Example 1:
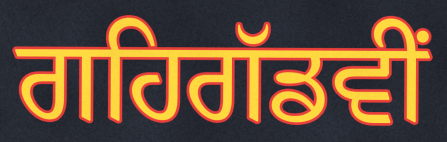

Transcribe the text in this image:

ਗਹਿਗੱਡਵੀਂ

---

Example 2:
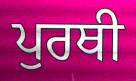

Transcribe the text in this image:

ਪੁਰਥੀ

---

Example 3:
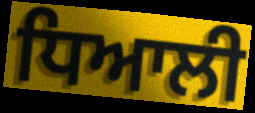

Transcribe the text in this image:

ਧਿਆਲੀ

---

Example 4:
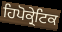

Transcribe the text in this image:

ਹਿਪੋਕ੍ਰੇਟਿਕ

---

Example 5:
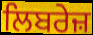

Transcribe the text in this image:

ਲਿਬਰੇਜ਼